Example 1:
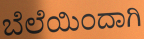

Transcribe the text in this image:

ಬೆಲೆಯಿಂದಾಗಿ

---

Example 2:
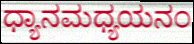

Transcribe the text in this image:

ಧ್ಯಾನಮಧ್ಯಯನಂ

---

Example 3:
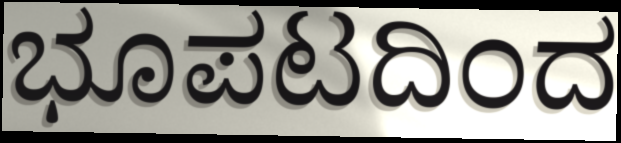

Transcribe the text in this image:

ಭೂಪಟದಿಂದ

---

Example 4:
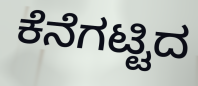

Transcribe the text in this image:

ಕೆನೆಗಟ್ಟಿದ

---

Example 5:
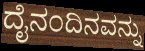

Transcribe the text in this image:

ದೈನಂದಿನವನ್ನು